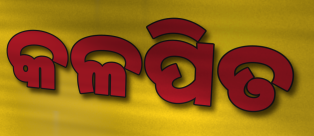
କଳପିତ